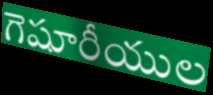
గెషూరీయుల